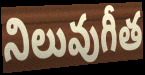
నిలువుగీత